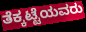
ತೆಕ್ಕಟ್ಟೆಯವರು